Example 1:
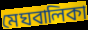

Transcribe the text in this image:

মেঘবালিকা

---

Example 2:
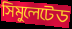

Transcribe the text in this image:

সিমুলেটেড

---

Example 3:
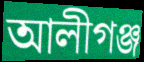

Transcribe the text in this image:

আলীগঞ্জ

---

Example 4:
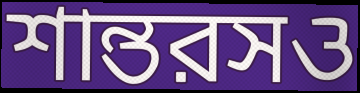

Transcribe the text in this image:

শান্তরসও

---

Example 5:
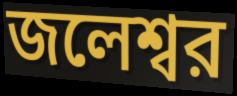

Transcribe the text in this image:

জলেশ্বর